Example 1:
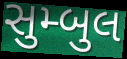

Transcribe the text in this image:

સુમ્બુલ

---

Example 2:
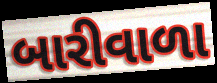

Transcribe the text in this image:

બારીવાળા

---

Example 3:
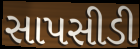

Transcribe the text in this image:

સાપસીડી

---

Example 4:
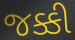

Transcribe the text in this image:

જક્કી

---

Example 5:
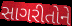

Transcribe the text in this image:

સાગરીતોને